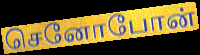
செனோபோன்